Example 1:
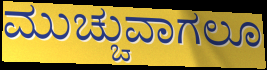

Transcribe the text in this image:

ಮುಚ್ಚುವಾಗಲೂ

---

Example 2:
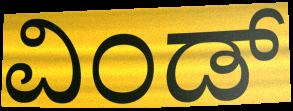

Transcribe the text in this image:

ವಿಂಡ್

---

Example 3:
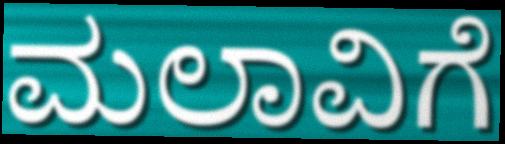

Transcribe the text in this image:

ಮಲಾವಿಗೆ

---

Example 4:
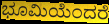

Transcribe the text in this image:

ಭೂಮಿಯೆಂದರೆ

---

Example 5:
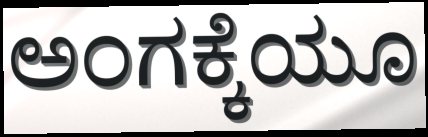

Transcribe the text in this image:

ಅಂಗಕ್ಕೆಯೂ